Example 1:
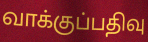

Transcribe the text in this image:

வாக்குப்பதிவு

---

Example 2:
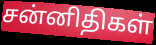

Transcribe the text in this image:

சன்னிதிகள்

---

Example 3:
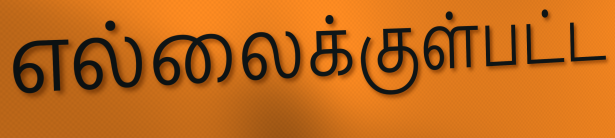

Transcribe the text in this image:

எல்லைக்குள்பட்ட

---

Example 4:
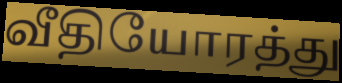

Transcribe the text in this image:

வீதியோரத்து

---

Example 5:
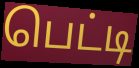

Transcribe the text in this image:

பெட்டி